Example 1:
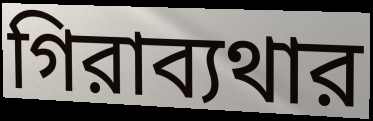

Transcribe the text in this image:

গিরাব্যথার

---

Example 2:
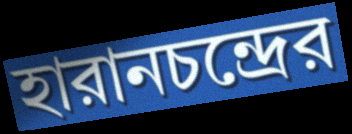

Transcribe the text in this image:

হারানচন্দ্রের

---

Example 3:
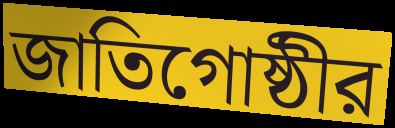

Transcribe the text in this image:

জাতিগোষ্ঠীর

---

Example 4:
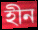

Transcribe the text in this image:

হীন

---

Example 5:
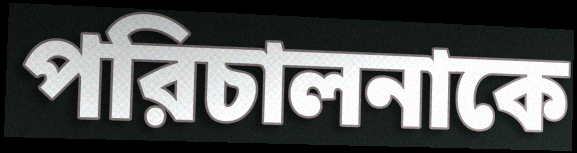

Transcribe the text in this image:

পরিচালনাকে